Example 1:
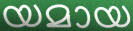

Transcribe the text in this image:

യമായ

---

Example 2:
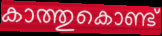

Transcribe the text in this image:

കാത്തുകൊണ്ട്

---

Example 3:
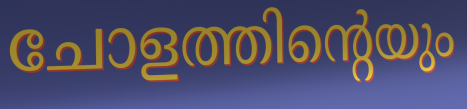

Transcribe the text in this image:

ചോളത്തിന്റെയും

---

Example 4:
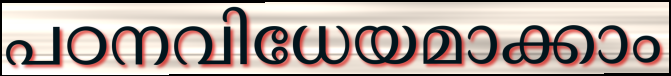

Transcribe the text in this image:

പഠനവിധേയമാക്കാം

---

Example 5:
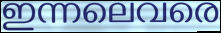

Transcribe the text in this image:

ഇന്നലെവരെ